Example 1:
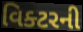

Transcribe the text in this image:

વિક્ટરની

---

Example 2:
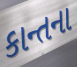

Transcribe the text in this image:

કાન્તના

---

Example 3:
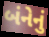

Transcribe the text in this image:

બંનેનું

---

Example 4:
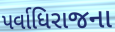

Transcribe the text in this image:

પર્વાધિરાજના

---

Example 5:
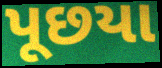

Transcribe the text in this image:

પૂછયા